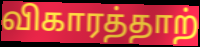
விகாரத்தாற்